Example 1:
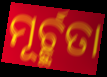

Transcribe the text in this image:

ମୂର୍ଚ୍ଛତା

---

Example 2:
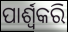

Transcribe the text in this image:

ପାର୍ଶ୍ଵକରି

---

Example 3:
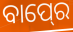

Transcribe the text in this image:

ବାପ୍‍ରେ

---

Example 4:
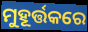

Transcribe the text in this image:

ମୁହୂର୍ତ୍ତକରେ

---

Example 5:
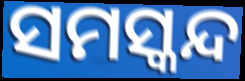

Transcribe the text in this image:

ସମସ୍କନ୍ଦ